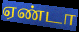
ஏண்டா